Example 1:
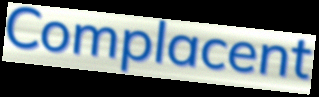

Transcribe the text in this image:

Complacent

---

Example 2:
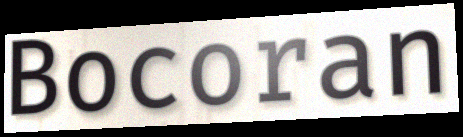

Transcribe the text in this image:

Bocoran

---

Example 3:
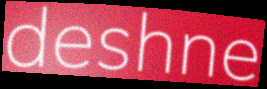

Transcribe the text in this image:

deshne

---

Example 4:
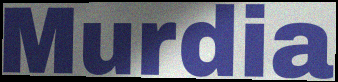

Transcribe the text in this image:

Murdia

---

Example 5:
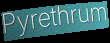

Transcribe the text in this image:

Pyrethrum